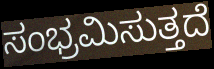
ಸಂಭ್ರಮಿಸುತ್ತದೆ